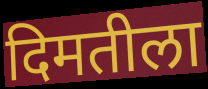
दिमतीला